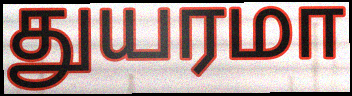
துயரமா